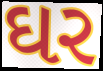
ઘર